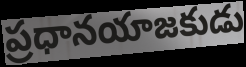
ప్రధానయాజకుడు